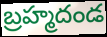
బ్రహ్మదండ